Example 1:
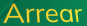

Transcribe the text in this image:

Arrear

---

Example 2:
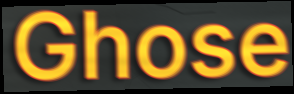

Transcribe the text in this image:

Ghose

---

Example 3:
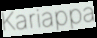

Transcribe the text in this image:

Kariappa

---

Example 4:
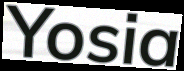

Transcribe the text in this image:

Yosia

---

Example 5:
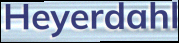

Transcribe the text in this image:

Heyerdahl